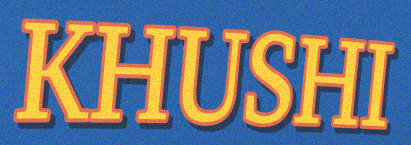
KHUSHI